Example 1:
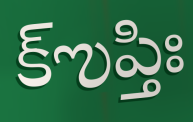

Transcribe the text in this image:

క్ఌప్తిః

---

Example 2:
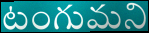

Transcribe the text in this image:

టంగుమని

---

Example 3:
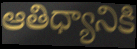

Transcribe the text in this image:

ఆతిధ్యానికి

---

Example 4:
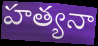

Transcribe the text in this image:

హత్యనా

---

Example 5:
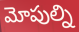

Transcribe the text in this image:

మోపుల్ని